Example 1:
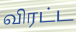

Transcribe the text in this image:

விரட்ட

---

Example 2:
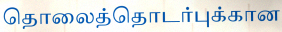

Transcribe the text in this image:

தொலைத்தொடர்புக்கான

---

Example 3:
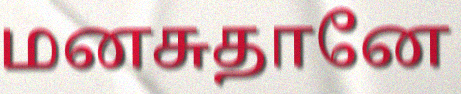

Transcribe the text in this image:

மனசுதானே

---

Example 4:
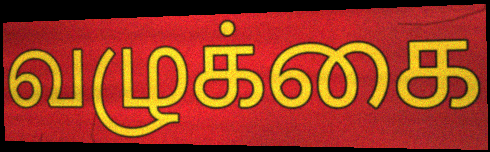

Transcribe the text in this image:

வழுக்கை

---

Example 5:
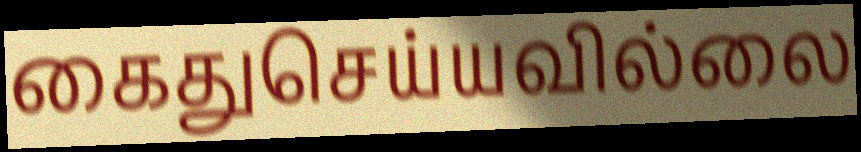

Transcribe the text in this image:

கைதுசெய்யவில்லை